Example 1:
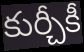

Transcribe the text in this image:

కుర్చీకీ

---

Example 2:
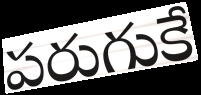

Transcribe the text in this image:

పరుగుకే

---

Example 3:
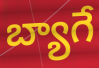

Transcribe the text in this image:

బ్యాగే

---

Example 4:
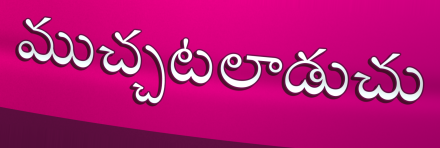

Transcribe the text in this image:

ముచ్చటలాడుచు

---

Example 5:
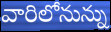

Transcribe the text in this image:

వారిలోనున్ను